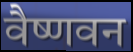
वैष्णवन